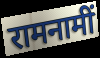
रामनामीं